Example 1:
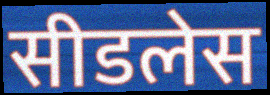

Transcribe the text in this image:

सीडलेस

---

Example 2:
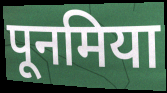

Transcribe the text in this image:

पूनमिया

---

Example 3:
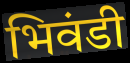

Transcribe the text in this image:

भिवंडी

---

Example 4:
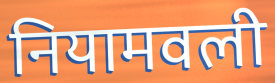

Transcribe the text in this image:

नियामवली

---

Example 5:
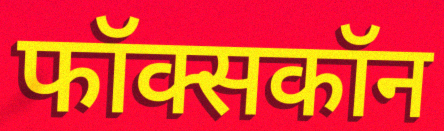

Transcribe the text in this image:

फॉक्सकॉन